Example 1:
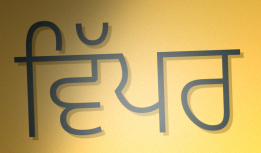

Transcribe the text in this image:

ਵਿੱਪਰ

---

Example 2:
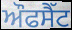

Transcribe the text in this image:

ਔਫਸੈੱਟ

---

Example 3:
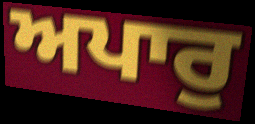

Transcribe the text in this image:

ਅਪਾਰੁ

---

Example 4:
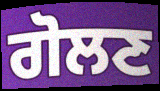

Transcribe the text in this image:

ਗੋਲਣ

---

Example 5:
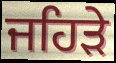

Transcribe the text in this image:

ਜਹਿੜੇ